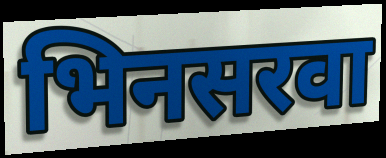
भिनसरवा